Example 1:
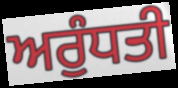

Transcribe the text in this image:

ਅਰੁੰਧਤੀ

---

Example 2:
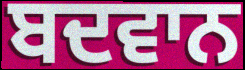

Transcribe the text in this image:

ਬਦਵਾਨ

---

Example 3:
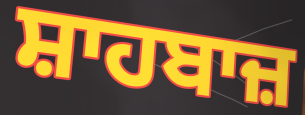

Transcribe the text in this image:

ਸ਼ਾਹਬਾਜ਼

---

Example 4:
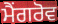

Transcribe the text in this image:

ਮੈਂਗਰੋਵ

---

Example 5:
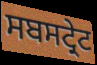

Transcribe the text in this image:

ਸਬਸਟ੍ਰੇਟ